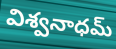
విశ్వనాధమ్